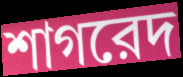
শাগরেদ